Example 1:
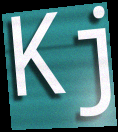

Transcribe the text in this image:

Kj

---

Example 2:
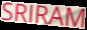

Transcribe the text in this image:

SRIRAM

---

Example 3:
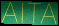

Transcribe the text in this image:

AITA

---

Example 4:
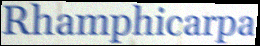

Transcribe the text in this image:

Rhamphicarpa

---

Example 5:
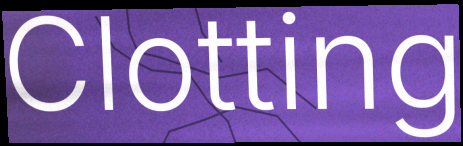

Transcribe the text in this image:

Clotting